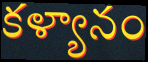
కళ్యానం